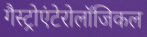
गैस्ट्रोएंटेरोलॉजिकल